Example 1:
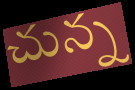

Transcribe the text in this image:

చున్న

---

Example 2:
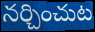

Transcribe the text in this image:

నర్చించుట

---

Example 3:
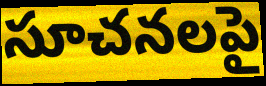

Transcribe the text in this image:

సూచనలపై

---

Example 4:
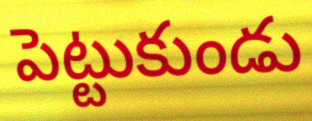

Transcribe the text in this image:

పెట్టుకుండు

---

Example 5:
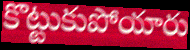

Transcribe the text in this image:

కొట్టుకుపోయారు